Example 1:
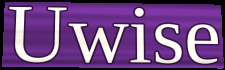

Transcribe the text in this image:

Uwise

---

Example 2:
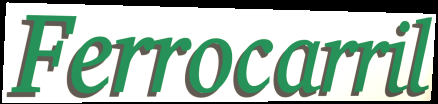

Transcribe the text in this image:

Ferrocarril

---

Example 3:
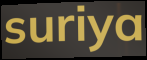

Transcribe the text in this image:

suriya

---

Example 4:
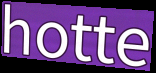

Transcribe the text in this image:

hotte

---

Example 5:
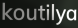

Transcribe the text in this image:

koutilya